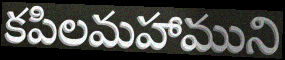
కపిలమహాముని